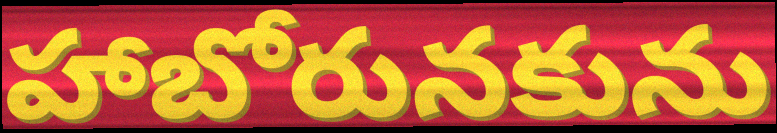
హాబోరునకును